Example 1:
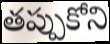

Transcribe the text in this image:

తప్పుకోని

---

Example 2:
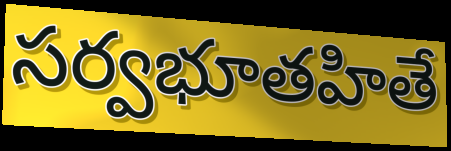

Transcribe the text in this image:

సర్వభూతహితే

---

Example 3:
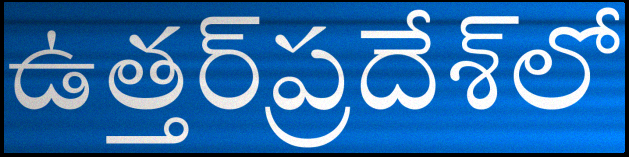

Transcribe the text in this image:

ఉత్తర్‌ప్రదేశ్‌లో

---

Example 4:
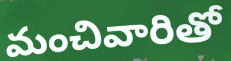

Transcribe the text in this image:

మంచివారితో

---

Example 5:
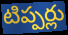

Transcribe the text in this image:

టిప్పర్లు